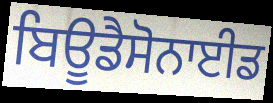
ਬਿਊਡੈਸੋਨਾਈਡ